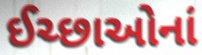
ઈચ્છાઓનાં